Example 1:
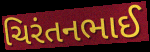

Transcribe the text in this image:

ચિરંતનભાઈ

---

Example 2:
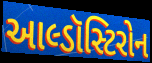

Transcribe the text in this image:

આલ્ડૉસ્ટિરોન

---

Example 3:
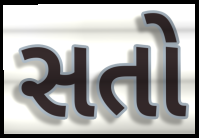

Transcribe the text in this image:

સતો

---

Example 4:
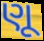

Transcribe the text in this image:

ણૂ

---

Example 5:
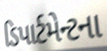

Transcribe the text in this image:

ડિપાર્ટમેન્ટના